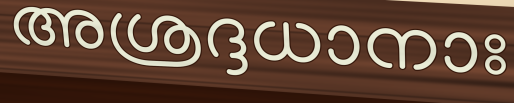
അശ്രദ്ദധാനാഃ